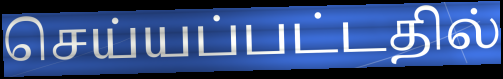
செய்யப்பட்டதில்